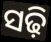
ସଢ଼ି